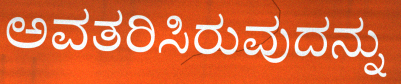
ಅವತರಿಸಿರುವುದನ್ನು